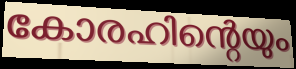
കോരഹിന്റെയും